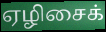
ஏழிசைக்